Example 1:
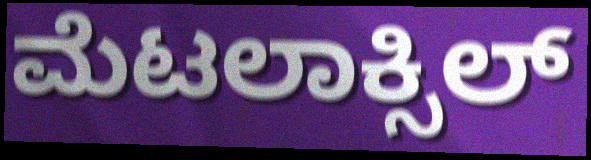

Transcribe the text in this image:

ಮೆಟಲಾಕ್ಸಿಲ್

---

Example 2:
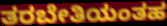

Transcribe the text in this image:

ತರಬೇತಿಯಂತಹ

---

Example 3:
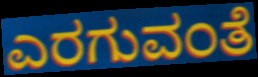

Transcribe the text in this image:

ಎರಗುವಂತೆ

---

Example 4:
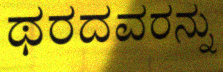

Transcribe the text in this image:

ಥರದವರನ್ನು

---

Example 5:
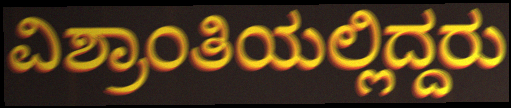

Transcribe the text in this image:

ವಿಶ್ರಾಂತಿಯಲ್ಲಿದ್ದರು